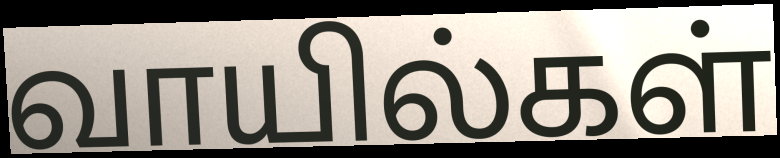
வாயில்கள்